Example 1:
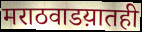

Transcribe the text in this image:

मराठवाडय़ातही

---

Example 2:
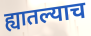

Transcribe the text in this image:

ह्यातल्याच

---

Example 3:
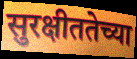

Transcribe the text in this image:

सुरक्षीततेच्या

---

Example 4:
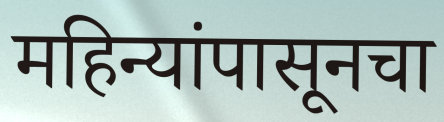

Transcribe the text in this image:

महिन्यांपासूनचा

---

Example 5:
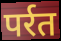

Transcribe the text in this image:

पर्रत